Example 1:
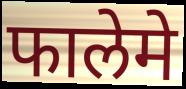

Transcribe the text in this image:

फालेमे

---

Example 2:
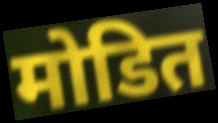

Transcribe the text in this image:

मोडित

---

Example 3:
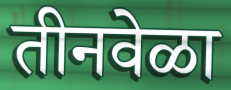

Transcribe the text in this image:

तीनवेळा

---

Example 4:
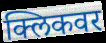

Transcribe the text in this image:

क्लिकवर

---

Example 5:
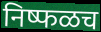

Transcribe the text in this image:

निष्फळच